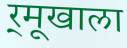
र्मूखाला